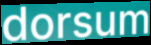
dorsum